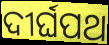
ଦୀର୍ଘପଥ